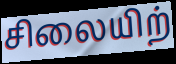
சிலையிற்